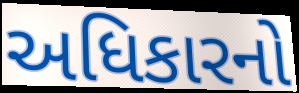
અધિકારનો